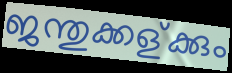
ജന്തുക്കള്ക്കും